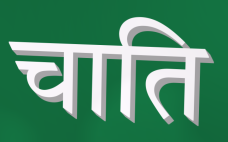
चाति